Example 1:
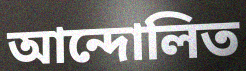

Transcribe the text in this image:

আন্দোলিত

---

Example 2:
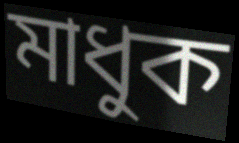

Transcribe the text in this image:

মাধুক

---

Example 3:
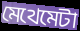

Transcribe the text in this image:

মেথেমেটা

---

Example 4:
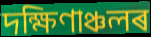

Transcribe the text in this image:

দক্ষিণাঞ্চলৰ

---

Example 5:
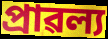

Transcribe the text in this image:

প্ৰাৱল্য